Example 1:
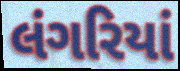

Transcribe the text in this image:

લંગરિયાં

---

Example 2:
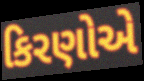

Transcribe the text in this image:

કિરણોએ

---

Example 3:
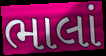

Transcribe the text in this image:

ભાલાં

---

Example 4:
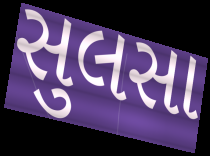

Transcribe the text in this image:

સુલસા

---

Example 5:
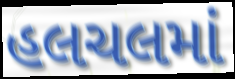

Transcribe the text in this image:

હલચલમાં